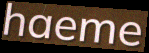
haeme